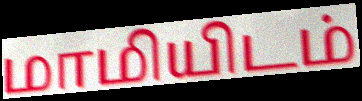
மாமியிடம்